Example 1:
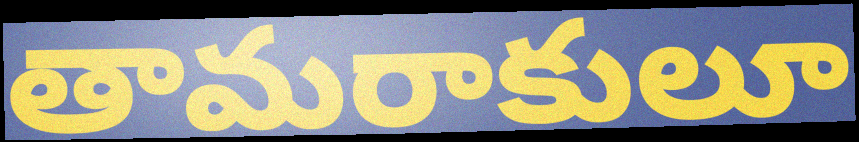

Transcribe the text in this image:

తామరాకులూ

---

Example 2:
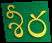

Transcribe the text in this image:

శీర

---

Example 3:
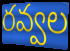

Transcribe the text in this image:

రవ్వల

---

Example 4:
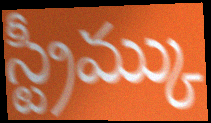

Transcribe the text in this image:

స్ట్రీమ్కు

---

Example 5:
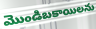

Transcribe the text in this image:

మొండిబకాయిలను